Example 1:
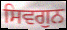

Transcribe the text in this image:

ਸਿਵਗੁਨ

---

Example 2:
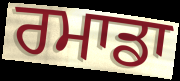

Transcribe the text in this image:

ਰਮਾਡਾ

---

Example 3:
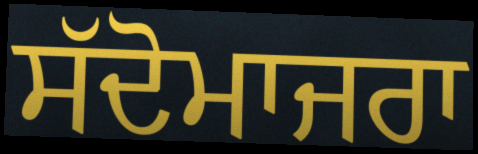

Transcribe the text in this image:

ਸੱਦੋਮਾਜਰਾ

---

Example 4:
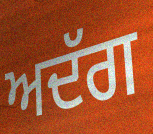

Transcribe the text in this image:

ਅਦੱਗ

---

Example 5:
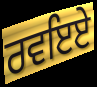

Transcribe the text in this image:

ਰਵਇਏ